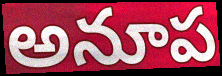
అనూప